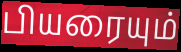
பியரையும்